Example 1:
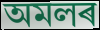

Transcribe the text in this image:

অমলৰ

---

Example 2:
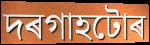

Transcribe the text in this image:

দৰগাহটোৰ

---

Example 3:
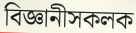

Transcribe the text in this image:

বিজ্ঞানীসকলক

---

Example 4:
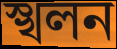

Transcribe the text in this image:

স্খলন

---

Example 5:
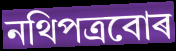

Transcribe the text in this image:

নথিপত্ৰবোৰ